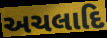
અચલાદિ